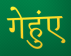
गेहुंए